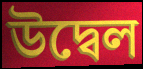
উদ্বেল